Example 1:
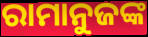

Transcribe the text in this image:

ରାମାନୁଜଙ୍କ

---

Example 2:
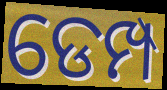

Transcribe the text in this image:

ଡେମ୍ପ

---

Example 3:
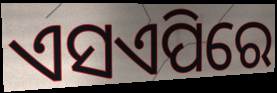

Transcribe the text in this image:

ଏସଏପିରେ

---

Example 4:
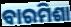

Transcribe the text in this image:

ବାରମିଶା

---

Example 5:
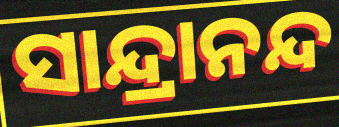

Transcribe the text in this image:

ସାନ୍ଦ୍ରାନନ୍ଦ